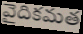
వైదికమత